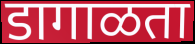
डागाळता